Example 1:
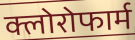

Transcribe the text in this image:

क्लोरोफार्म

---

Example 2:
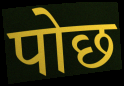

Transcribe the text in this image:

पोछ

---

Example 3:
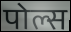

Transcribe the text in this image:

पोल्‍स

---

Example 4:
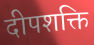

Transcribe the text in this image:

दीपशक्ति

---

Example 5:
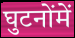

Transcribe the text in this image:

घुटनोंमें